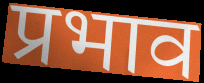
प्रभाव